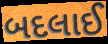
બદલાઈ